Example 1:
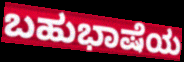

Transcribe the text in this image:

ಬಹುಭಾಷೆಯ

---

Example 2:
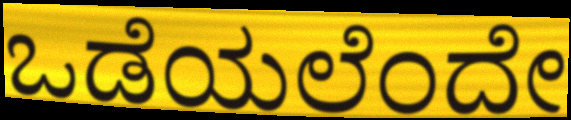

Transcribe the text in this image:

ಒಡೆಯಲೆಂದೇ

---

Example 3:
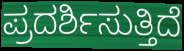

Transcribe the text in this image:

ಪ್ರದರ್ಶಿಸುತ್ತಿದೆ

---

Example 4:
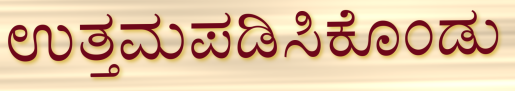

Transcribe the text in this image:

ಉತ್ತಮಪಡಿಸಿಕೊಂಡು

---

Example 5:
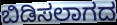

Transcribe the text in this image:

ಬಿಡಿಸಲಾಗದ